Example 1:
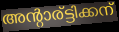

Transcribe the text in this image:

അന്റാര്ട്ടിക്കന്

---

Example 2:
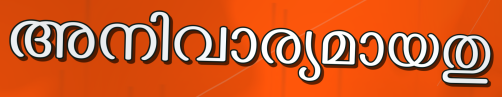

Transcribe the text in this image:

അനിവാര്യമായതു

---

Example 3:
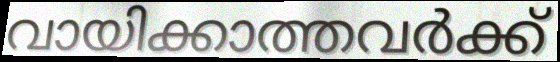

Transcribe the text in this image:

വായിക്കാത്തവർക്ക്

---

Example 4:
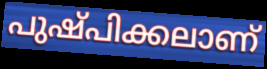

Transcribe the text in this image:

പുഷ്പിക്കലാണ്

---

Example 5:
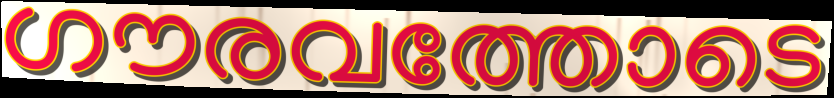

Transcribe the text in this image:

ഗൗരവത്തോടെ